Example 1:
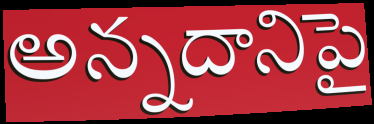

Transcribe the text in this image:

అన్నదానిపై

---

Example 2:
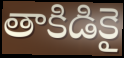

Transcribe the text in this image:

తాకిడికై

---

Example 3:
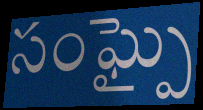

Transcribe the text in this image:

సంఘ్పై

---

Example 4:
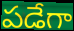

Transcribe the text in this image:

పడేగా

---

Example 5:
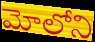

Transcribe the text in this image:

మోలోని